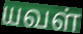
யவள்